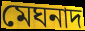
মেঘনাদ